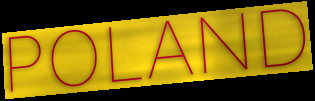
POLAND